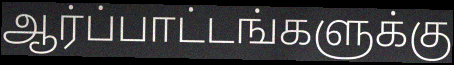
ஆர்ப்பாட்டங்களுக்கு